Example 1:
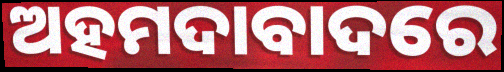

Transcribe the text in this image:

ଅହମଦାବାଦରେ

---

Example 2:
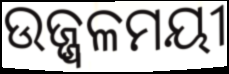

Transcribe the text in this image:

ଉଜ୍ଜ୍ୱଳମୟୀ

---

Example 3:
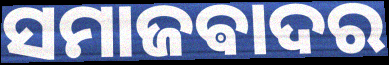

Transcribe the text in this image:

ସମାଜଵାଦର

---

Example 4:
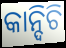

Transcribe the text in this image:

କାନ୍ଦିଚି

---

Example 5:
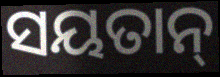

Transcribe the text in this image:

ସୟତାନ୍